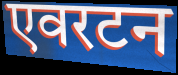
एवरटन